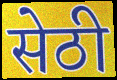
सेठी